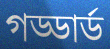
গড্ডার্ড